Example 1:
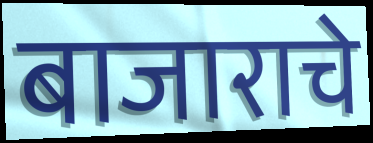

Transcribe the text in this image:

बाजाराचे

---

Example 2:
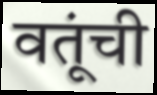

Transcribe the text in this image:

वतूंची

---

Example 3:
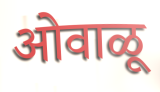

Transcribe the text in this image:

ओवाळू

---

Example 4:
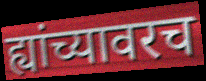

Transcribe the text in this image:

ह्यांच्यावरच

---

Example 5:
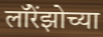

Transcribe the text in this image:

लॉरेंझोच्या